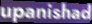
upanishad